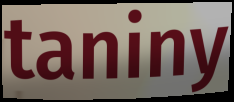
taniny